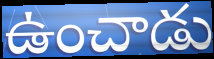
ఉంచాడు